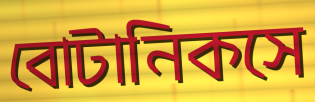
বোটানিকসে